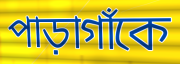
পাড়াগাঁকে